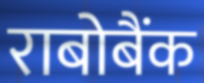
राबोबैंक